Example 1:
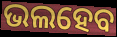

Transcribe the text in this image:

ଭଲହେବ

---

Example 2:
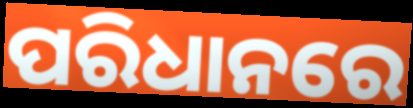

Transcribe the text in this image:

ପରିଧାନରେ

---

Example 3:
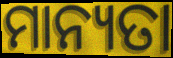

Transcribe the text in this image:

ମାନ୍ୟତା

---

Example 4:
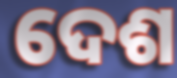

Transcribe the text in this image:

ଦେଶ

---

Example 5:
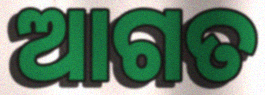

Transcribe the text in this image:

ଆଗତ